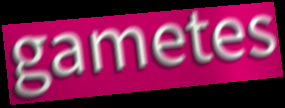
gametes